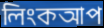
লিংকআপ